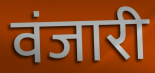
वंजारी